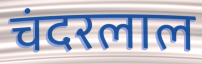
चंदरलाल